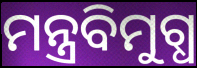
ମନ୍ତ୍ରବିମୁଗ୍ଧ